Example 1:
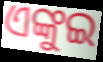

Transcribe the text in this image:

ଏଙ୍କୁଇ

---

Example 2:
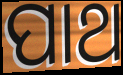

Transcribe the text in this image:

ପାଥ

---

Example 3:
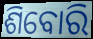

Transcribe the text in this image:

ଶିବୋରି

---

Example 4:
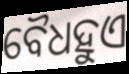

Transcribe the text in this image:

ବୈଧହୁଏ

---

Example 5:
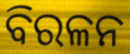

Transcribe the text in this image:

ବିରଳନ